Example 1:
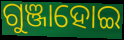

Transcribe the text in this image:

ଗୁଞ୍ଜାହୋଇ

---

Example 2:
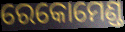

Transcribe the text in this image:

ରେକୋମେଣ୍ଡ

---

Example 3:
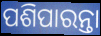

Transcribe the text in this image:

ପଶିପାରନ୍ତା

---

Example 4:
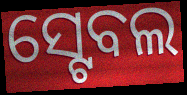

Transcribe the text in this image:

ସ୍ଟେବଲ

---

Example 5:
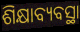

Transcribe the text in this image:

ଶିକ୍ଷାବ୍ୟବସ୍ଥା